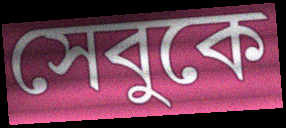
সেবুকে